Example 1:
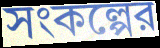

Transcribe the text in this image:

সংকল্পের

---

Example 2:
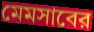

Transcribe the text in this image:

মেমসাবের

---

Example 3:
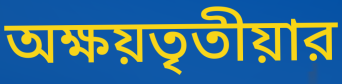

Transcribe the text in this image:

অক্ষয়তৃতীয়ার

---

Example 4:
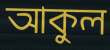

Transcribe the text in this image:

আকুল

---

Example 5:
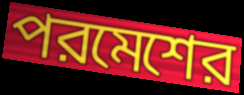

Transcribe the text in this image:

পরমেশের